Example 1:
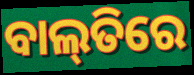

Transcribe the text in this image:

ବାଲ୍‌ତିରେ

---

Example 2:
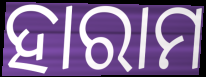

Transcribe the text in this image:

ହାରାମ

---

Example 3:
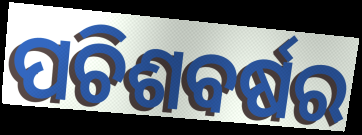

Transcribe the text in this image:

ପଚିଶବର୍ଷର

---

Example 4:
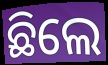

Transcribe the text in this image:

ଛିଲେ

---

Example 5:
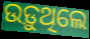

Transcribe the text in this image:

ଉଡ଼ୁଥିଲେ